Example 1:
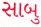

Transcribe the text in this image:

સાબુ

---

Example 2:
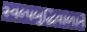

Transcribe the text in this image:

સ્વલ્પબુદ્ધિવાળાને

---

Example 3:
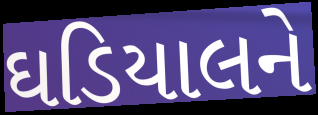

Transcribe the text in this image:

ઘડિયાલને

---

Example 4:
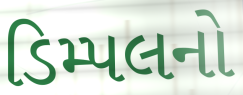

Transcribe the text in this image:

ડિમ્પલનો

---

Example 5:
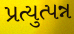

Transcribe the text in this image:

પ્રત્યુત્પન્ન